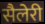
सैलेरी